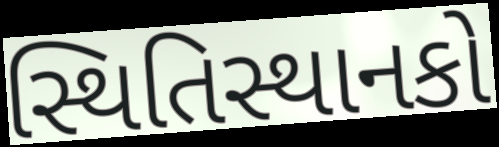
સ્થિતિસ્થાનકો